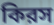
কিরস